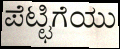
ಪೆಟ್ಟಿಗೆಯು